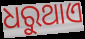
ଧରୁଥାଏ